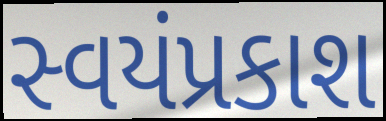
સ્વયંપ્રકાશ